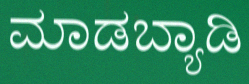
ಮಾಡಬ್ಯಾಡಿ